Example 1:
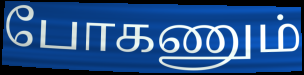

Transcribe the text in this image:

போகணும்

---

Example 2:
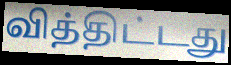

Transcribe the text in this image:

வித்திட்டது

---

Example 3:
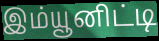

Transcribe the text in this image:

இம்யூனிட்டி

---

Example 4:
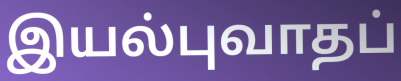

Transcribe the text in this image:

இயல்புவாதப்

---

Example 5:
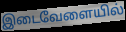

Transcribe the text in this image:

இடைவேளையில்